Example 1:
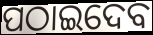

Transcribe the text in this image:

ପଠାଇଦେବ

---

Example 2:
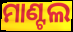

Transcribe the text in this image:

ମାଣ୍ଟଲ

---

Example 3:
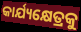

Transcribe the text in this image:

କାର୍ଯ୍ୟକ୍ଷେତ୍ରକୁ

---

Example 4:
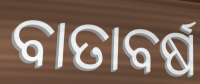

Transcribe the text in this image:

ବାତାବର୍ଷ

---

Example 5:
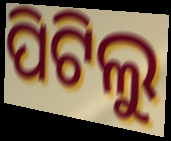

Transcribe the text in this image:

ପିଟିଲୁ